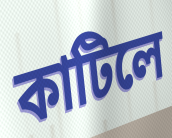
কাটিলে